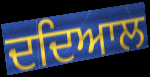
ਦਦਿਆਲ